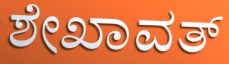
ಶೇಖಾವತ್